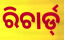
ରିଚାର୍ଡ୍